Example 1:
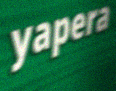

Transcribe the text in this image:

yapera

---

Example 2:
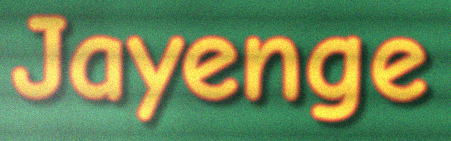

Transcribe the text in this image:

Jayenge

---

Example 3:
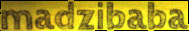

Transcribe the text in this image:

madzibaba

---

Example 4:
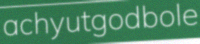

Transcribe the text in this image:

achyutgodbole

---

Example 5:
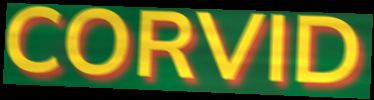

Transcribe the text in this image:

CORVID